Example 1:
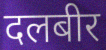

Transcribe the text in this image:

दलबीर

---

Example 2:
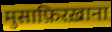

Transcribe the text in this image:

मुसाफ़िरख़ाना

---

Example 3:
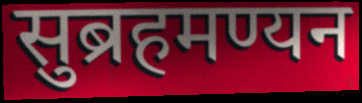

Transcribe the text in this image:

सुब्रहमण्यन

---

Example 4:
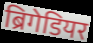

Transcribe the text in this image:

ब्रिगेडियर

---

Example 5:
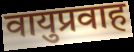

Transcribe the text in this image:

वायुप्रवाह